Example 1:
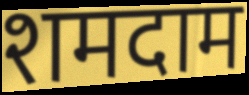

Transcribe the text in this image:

शमदाम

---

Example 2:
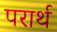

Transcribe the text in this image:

परार्थ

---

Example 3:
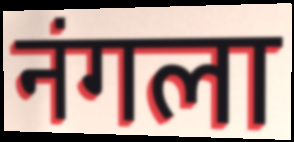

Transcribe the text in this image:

नंगला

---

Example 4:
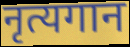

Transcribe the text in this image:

नृत्यगान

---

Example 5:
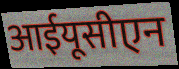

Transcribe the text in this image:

आईयूसीएन